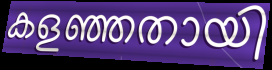
കളഞ്ഞതായി